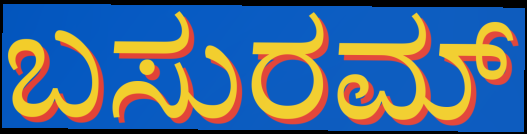
ಬಸುರಮ್